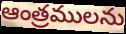
ఆంత్రములను